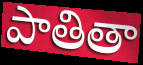
పాతితా